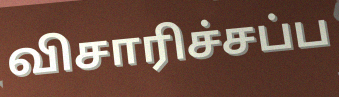
விசாரிச்சப்ப